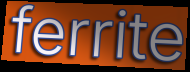
ferrite